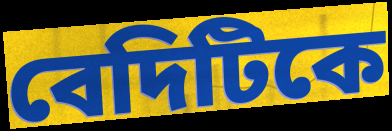
বেদিটিকে